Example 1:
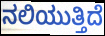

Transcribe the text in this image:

ನಲಿಯುತ್ತಿದೆ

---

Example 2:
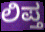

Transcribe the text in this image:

ಲಿಪ್ತ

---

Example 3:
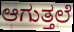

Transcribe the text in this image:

ಆಗುತ್ತಲೆ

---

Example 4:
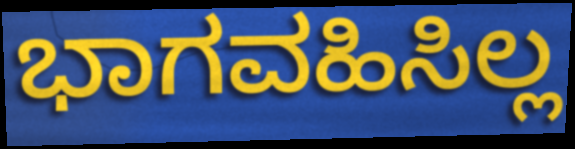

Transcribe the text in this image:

ಭಾಗವಹಿಸಿಲ್ಲ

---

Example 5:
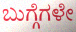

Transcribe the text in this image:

ಬುಗ್ಗೆಗಳೇ